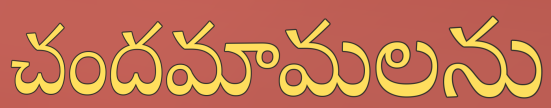
చందమామలను